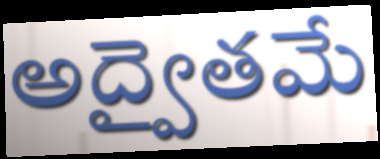
అద్వైతమే